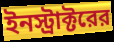
ইনস্ট্রাক্টরের